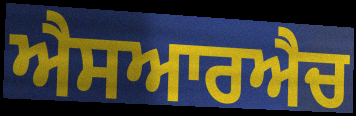
ਐਸਆਰਐਚ